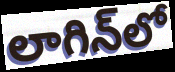
లాగిన్‌లో